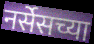
नर्सेसच्या